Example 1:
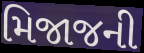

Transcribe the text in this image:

મિજાજની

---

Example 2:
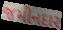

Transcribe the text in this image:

જમીનદાર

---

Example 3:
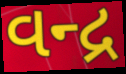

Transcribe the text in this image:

વન્દ્ર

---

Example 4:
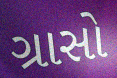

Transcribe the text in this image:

ગ્રાસો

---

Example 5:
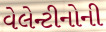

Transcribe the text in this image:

વેલેન્ટીનોની